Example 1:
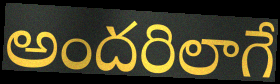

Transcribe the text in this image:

అందరిలాగే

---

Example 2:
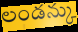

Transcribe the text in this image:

లండన్కు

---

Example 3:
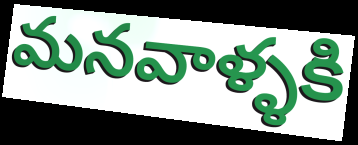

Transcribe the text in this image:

మనవాళ్ళకి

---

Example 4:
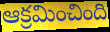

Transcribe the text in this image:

ఆక్రమించింది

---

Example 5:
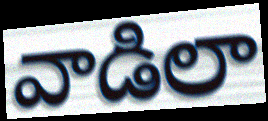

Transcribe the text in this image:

వాడిలా